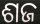
ଶଜ